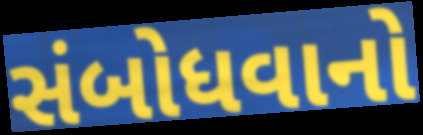
સંબોધવાનો